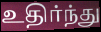
உதிர்ந்து